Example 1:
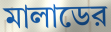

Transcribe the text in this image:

মালাডের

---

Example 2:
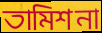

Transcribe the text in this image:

তামিশনা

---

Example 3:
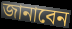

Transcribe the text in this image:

জানাবেন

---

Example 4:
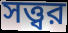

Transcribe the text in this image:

সত্ত্বর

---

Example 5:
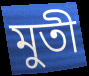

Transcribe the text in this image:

মুতী